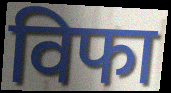
विफा